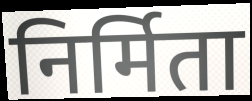
निर्मिता